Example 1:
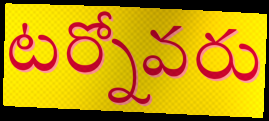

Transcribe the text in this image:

టర్నోవరు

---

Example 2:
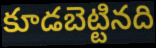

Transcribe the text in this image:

కూడబెట్టినది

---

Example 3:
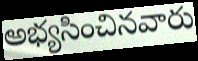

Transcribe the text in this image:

అభ్యసించినవారు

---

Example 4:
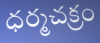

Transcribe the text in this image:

ధర్మచక్రం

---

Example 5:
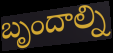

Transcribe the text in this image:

బృందాల్ని